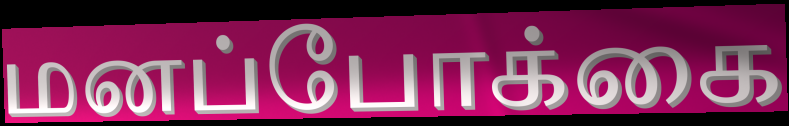
மனப்போக்கை